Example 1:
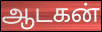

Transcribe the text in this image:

ஆடகன்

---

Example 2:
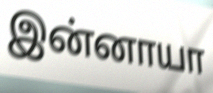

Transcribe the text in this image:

இன்னாயா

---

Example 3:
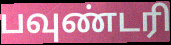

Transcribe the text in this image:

பவுண்டரி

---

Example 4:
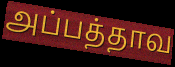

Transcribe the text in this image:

அப்பத்தாவ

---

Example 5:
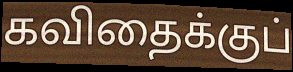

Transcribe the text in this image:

கவிதைக்குப்